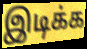
இடிக்க